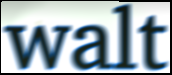
walt